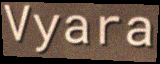
Vyara